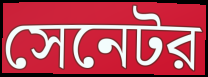
সেনেটর